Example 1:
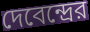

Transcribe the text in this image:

দেবেন্দ্রের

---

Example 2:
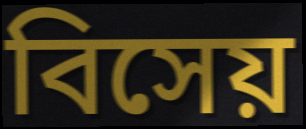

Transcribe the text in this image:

বিসেয়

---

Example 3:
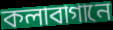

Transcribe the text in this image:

কলাবাগানে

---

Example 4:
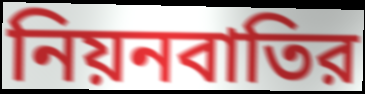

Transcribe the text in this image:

নিয়নবাতির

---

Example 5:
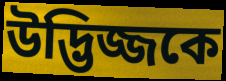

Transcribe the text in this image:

উদ্ভিজ্জকে